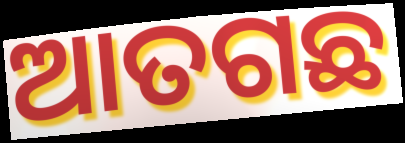
ଆତଗଛ